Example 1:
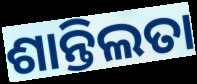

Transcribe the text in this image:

ଶାନ୍ତିଲତା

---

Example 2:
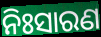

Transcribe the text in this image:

ନିଃସାରଣ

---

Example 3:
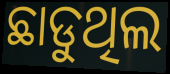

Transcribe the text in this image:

ଛାଡୁଥିଲ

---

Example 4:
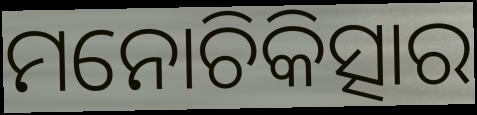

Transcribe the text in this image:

ମନୋଚିକିତ୍ସାର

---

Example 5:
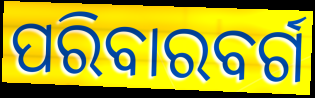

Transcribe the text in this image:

ପରିବାରବର୍ଗ